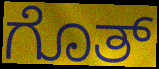
ಗೊತ್